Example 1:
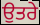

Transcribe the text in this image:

ਉਤਰੇ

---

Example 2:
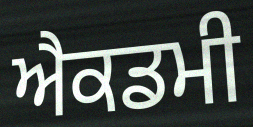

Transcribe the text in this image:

ਐਕਡਮੀ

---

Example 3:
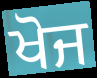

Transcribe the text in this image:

ਖੋਜ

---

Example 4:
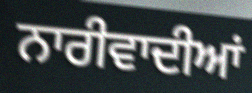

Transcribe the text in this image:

ਨਾਰੀਵਾਦੀਆਂ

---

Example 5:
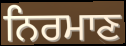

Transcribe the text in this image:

ਨਿਰਮਾਣ